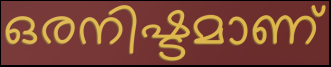
ഒരനിഷ്ടമാണ്